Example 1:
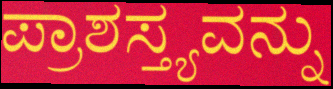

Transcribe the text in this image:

ಪ್ರಾಶಸ್ತ್ಯವನ್ನು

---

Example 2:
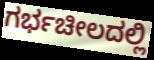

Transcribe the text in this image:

ಗರ್ಭಚೀಲದಲ್ಲಿ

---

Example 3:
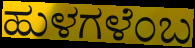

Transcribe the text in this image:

ಹುಳಗಳೆಂಬ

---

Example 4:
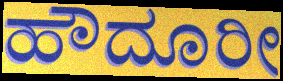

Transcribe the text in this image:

ಹೌದೂರೀ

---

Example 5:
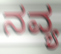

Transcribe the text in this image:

ನವ್ಯ